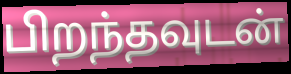
பிறந்தவுடன்